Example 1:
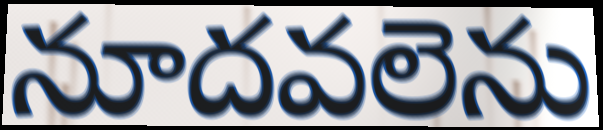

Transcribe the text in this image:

నూదవలెను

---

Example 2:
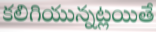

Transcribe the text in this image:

కలిగియున్నట్లయితే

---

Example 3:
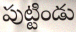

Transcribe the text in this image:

పుట్టిండు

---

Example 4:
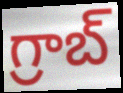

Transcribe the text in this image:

గ్రాబ్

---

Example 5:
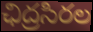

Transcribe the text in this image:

ఛిద్రసిరల